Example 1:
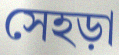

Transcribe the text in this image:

সেহড়া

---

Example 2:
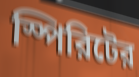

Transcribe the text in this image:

স্পিরিটের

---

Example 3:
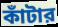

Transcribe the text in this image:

কাঁটার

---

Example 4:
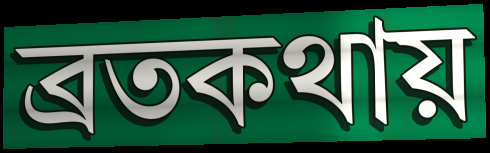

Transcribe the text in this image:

ব্রতকথায়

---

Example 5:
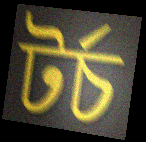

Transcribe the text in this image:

টর্চ